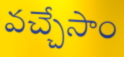
వచ్చేసాం